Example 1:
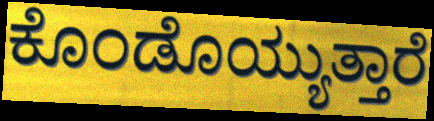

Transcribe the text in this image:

ಕೊಂಡೊಯ್ಯುತ್ತಾರೆ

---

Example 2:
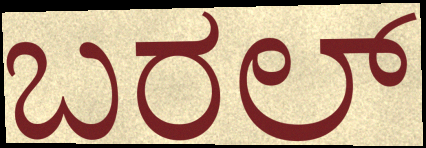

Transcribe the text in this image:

ಬರಲ್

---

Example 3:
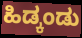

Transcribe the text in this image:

ಹಿಡ್ಕಂಡು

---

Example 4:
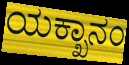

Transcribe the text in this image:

ಯಕ್ಖಾನಂ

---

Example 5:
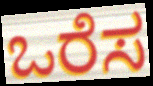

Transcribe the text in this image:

ಒರೆಸ